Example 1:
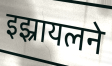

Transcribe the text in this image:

इझ्रायलने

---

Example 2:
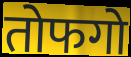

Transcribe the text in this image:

तोफगो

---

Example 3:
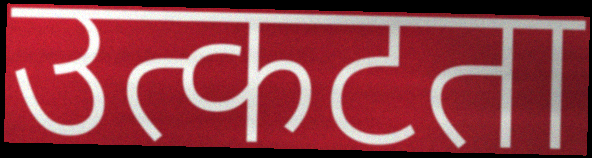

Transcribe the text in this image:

उत्कटता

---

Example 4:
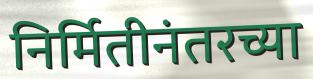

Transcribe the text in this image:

निर्मितीनंतरच्या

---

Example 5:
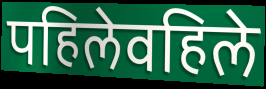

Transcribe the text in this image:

पहिलेवहिले